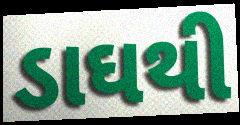
ડાઘથી